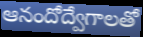
ఆనందోద్వేగాలతో